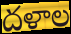
దళాల